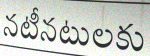
నటీనటులకు